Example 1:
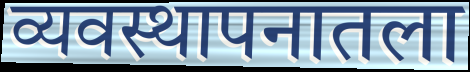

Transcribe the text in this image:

व्यवस्थापनातला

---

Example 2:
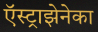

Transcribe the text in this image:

ऍस्ट्राझेनेका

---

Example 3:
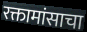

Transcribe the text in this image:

रक्तामांसाचा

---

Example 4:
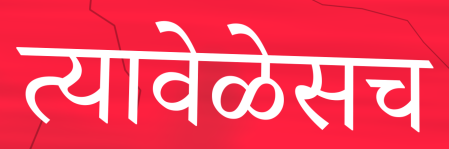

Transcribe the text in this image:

त्यावेळेसच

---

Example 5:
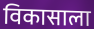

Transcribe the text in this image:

विकासाला